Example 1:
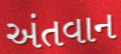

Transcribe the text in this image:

અંતવાન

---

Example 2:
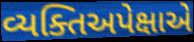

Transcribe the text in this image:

વ્યક્તિઅપેક્ષાએ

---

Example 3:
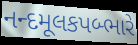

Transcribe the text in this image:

નન્દમૂલકપબ્ભારે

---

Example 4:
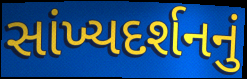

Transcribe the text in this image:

સાંખ્યદર્શનનું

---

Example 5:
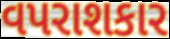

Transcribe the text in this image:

વપરાશકાર